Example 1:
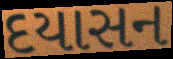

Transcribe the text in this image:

દયાસન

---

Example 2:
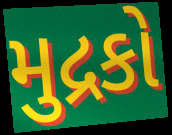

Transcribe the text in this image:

મુદ્રકો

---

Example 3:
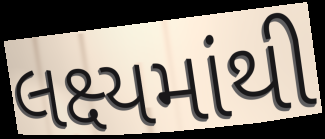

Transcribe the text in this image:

લક્ષ્યમાંથી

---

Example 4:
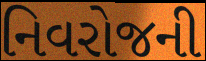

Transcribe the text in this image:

નિવરોજની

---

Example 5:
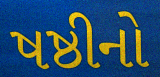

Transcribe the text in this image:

ષષ્ઠીનો